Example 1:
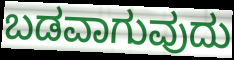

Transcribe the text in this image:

ಬಡವಾಗುವುದು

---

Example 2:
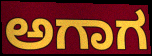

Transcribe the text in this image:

ಅಗಾಗ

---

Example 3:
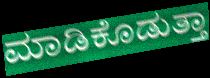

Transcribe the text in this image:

ಮಾಡಿಕೊಡುತ್ತಾ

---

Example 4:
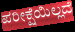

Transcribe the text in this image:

ಪರೀಕ್ಷೆಯಿಲ್ಲದೆ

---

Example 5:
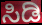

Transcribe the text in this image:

ಸಿಡಿ